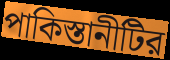
পাকিস্তানীটির